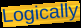
Logically